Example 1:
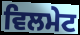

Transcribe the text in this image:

ਵਿਲਮੇਟ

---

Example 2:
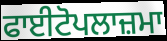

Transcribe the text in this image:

ਫਾਈਟੋਪਲਾਜ਼ਮਾ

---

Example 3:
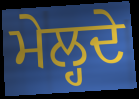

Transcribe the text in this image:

ਮੇਲ੍ਹਦੇ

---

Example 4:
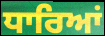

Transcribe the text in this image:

ਧਾਰਿਆਂ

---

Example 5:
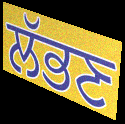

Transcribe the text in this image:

ਲੱਭਣ